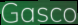
Gasco